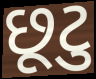
છૂટુ